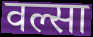
वल्सा